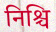
निश्चि